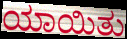
ಯಾಯಿತು